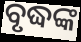
ବୃଦ୍ଧଙ୍କ